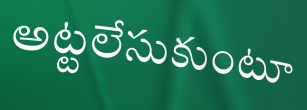
అట్టలేసుకుంటూ